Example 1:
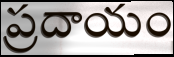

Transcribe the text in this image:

ప్రదాయం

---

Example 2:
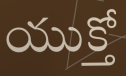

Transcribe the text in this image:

యుక్తో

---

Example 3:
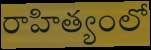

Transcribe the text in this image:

రాహిత్యంలో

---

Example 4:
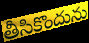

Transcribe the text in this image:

తీసికొందును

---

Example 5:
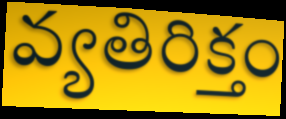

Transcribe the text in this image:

వ్యతిరిక్తం